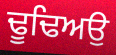
ਢੂਢਿਅਉ